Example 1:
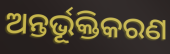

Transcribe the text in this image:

ଅନ୍ତର୍ଭୂକ୍ତିକରଣ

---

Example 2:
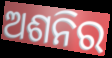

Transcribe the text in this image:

ଅଶନିର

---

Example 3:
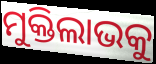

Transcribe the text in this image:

ମୁକ୍ତିଲାଭକୁ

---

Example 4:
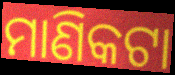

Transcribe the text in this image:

ମାଣିକଟା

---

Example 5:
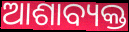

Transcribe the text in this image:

ଆଶାବ୍ୟକ୍ତ